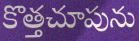
కొత్తచూపును